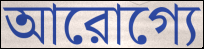
আরোগ্যে